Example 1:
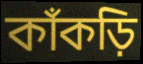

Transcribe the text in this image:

কাঁকড়ি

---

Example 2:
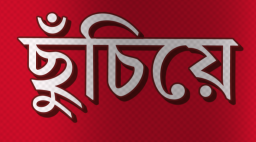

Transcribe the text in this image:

ছুঁচিয়ে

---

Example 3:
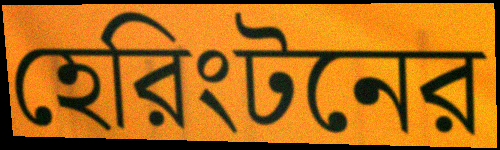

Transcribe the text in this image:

হেরিংটনের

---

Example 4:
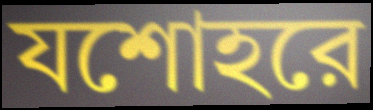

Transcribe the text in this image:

যশোহরে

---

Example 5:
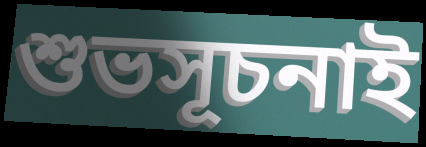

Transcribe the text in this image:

শুভসূচনাই